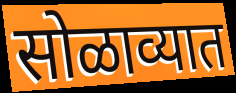
सोळाव्यात